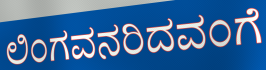
ಲಿಂಗವನರಿದವಂಗೆ